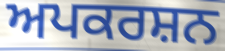
ਅਪਕਰਸ਼ਨ